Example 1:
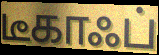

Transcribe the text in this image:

டீகாஃப்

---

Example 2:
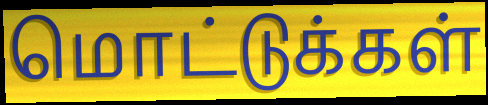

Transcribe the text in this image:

மொட்டுக்கள்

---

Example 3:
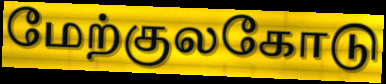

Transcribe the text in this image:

மேற்குலகோடு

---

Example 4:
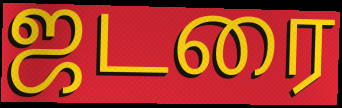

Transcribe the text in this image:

ஜடரை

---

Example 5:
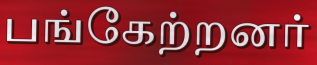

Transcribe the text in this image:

பங்கேற்றனர்